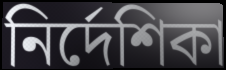
নির্দেশিকা